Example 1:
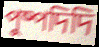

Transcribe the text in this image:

পুষ্পদিদি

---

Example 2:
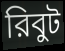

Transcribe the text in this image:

রিবুট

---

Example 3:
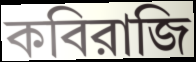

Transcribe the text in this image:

কবিরাজি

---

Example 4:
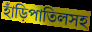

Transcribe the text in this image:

হাঁড়িপাতিলসহ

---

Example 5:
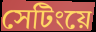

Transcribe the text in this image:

সেটিংয়ে